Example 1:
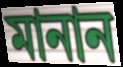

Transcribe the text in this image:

মানান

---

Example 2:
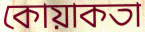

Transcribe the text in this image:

কোয়াকতা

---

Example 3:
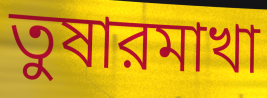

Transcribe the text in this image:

তুষারমাখা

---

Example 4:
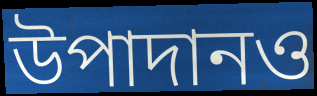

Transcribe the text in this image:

উপাদানও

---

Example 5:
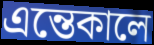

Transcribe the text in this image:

এন্তেকালে